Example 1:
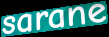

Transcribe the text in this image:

sarane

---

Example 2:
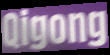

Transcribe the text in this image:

Qigong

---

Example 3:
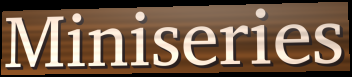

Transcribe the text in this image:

Miniseries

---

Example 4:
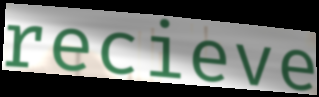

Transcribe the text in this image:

recieve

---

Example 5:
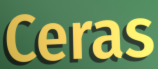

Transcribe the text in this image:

Ceras